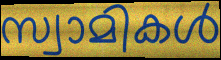
സ്വാമികൾ